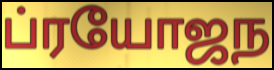
ப்ரயோஜந